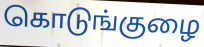
கொடுங்குழை